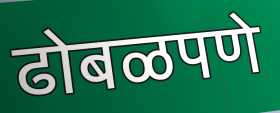
ढोबळपणे